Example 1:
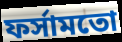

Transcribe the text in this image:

ফর্সামতো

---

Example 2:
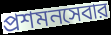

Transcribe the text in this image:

প্রশমনসেবার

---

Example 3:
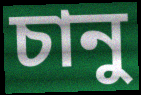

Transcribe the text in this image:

চানু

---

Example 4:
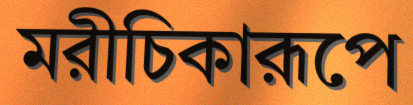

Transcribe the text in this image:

মরীচিকারূপে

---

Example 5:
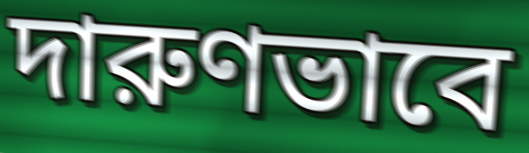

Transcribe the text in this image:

দারুণভাবে